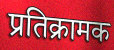
प्रतिक्रामक